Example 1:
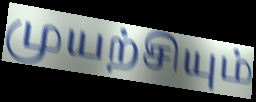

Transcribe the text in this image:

முயற்சியும்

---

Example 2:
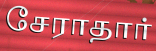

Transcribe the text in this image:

சேராதார்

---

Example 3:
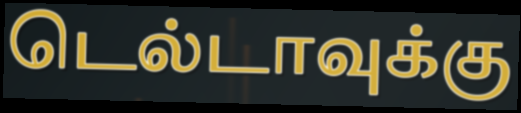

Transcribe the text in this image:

டெல்டாவுக்கு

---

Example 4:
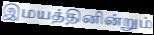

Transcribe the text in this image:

இமயத்தினின்றும்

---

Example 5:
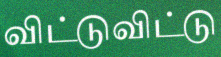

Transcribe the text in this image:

விட்டுவிட்டு